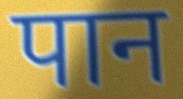
पान